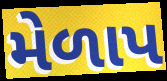
મેળાપ